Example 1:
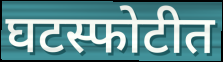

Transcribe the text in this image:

घटस्फोटीत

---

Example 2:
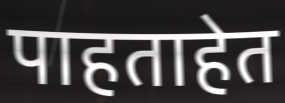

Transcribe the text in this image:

पाहताहेत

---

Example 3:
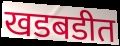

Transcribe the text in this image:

खडबडीत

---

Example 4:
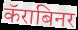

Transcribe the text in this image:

कॅराबिनर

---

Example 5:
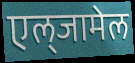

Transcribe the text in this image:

एल्जामेल